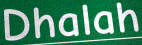
Dhalah